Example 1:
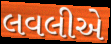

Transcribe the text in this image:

લવલીએ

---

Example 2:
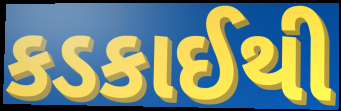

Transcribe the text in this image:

કડકાઈથી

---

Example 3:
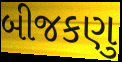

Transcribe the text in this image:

બીજકણુ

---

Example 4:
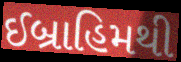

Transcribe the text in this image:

ઈબ્રાહિમથી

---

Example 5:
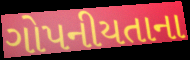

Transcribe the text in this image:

ગોપનીયતાના